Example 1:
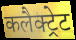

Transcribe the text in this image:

कलैक्ट्रेट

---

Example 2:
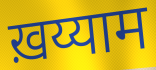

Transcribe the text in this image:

ख़य्याम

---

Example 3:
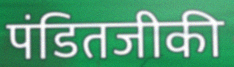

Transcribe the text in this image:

पंडितजीकी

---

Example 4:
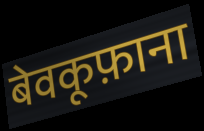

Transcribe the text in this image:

बेवकूफ़ाना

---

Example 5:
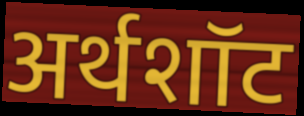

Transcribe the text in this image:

अर्थशॉट